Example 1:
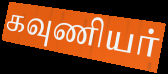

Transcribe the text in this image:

கவுணியர்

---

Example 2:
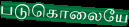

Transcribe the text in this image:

படுகொலையே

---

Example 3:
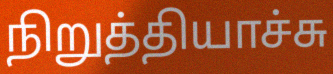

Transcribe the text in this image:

நிறுத்தியாச்சு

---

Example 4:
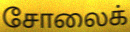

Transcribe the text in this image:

சோலைக்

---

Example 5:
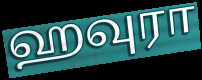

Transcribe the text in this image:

ஹவுரா